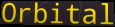
Orbital